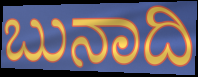
ಬುನಾದಿ